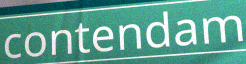
contendam